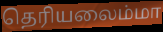
தெரியலைம்மா